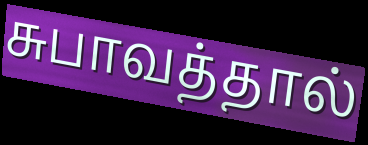
சுபாவத்தால்